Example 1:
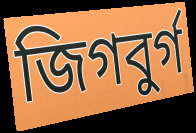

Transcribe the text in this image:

জিগবুর্গ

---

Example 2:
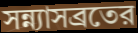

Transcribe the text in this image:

সন্ন্যাসব্রতের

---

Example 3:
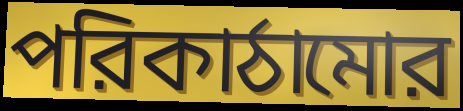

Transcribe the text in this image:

পরিকাঠামোর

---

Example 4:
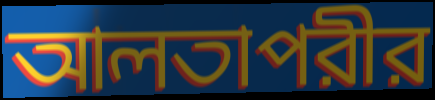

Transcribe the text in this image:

আলতাপরীর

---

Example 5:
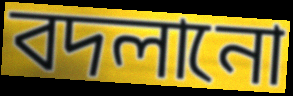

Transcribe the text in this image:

বদলানো